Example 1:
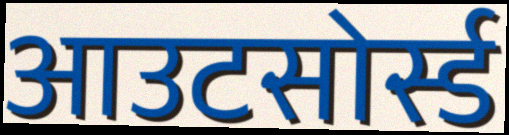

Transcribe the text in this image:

आउटसोर्स्ड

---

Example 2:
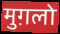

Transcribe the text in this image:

मुग़लो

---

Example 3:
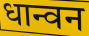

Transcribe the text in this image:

धान्वन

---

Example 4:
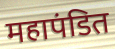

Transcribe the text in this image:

महापंडित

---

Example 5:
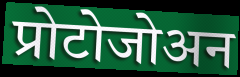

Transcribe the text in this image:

प्रोटोजोअन